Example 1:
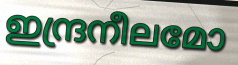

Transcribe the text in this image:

ഇന്ദ്രനീലമോ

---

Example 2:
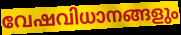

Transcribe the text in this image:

വേഷവിധാനങ്ങളും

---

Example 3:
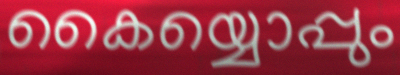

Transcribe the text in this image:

കൈയ്യൊപ്പും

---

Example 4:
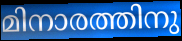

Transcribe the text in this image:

മിനാരത്തിനു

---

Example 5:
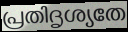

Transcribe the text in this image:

പ്രതിദൃശ്യതേ